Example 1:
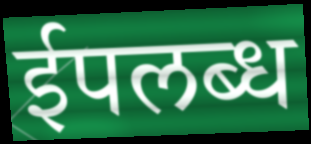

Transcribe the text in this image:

ईपलब्ध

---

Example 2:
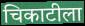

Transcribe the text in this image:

चिकाटीला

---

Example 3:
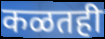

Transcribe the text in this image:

कळतही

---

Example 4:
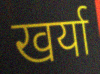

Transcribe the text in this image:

खर्या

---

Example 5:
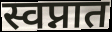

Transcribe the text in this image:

स्वप्नात